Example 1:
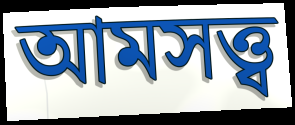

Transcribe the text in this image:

আমসত্ত্ব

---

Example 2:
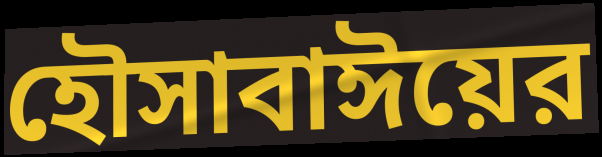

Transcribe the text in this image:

হৌসাবাঈয়ের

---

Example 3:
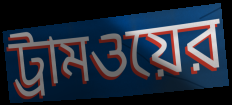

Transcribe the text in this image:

ট্রামওয়ের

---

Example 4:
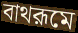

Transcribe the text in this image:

বাথরূমে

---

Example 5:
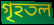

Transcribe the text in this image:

গৃহতল